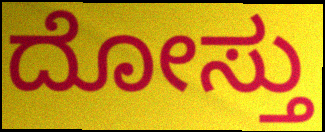
ದೋಸ್ತು